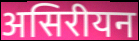
असिरीयन